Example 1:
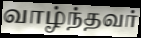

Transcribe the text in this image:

வாழ்ந்தவர்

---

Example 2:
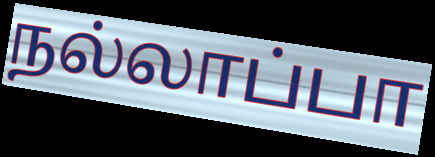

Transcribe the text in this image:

நல்லாப்பா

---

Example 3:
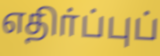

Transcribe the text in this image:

எதிர்ப்புப்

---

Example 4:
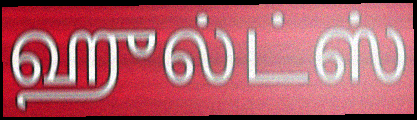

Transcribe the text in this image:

ஹுல்ட்ஸ்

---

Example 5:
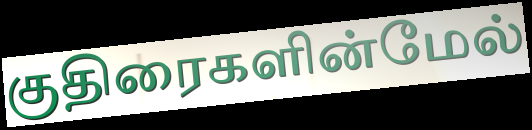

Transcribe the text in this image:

குதிரைகளின்மேல்